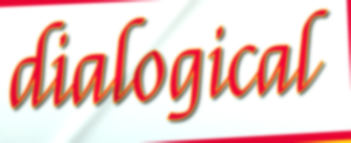
dialogical